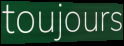
toujours